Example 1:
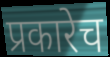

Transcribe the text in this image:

प्रकारेच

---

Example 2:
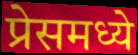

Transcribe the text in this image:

प्रेसमध्ये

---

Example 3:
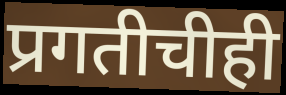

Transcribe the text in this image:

प्रगतीचीही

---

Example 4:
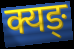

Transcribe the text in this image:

क्यङ्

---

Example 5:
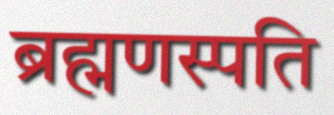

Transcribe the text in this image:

ब्रह्मणस्पति